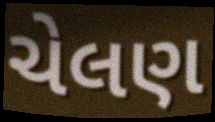
ચેલણ